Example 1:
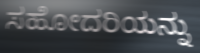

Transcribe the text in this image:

ಸಹೋದರಿಯನ್ನು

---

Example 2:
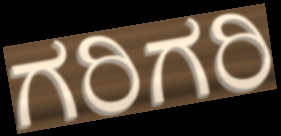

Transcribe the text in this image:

ಗರಿಗರಿ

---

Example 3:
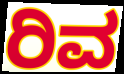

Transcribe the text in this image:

ರಿವ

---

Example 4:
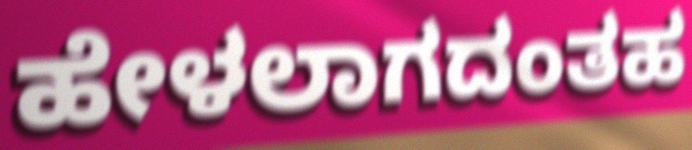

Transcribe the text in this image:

ಹೇಳಲಾಗದಂತಹ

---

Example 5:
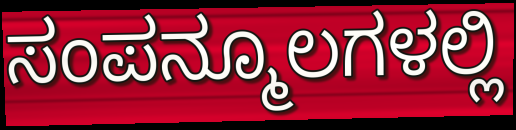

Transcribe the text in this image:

ಸಂಪನ್ಮೂಲಗಳಲ್ಲಿ